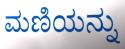
ಮಣಿಯನ್ನು